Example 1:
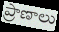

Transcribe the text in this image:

ప్రాణాలు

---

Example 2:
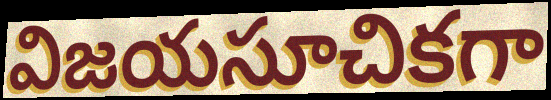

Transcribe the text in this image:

విజయసూచికగా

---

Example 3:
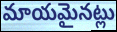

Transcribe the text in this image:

మాయమైనట్లు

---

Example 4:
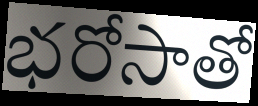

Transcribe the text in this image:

భరోసాతో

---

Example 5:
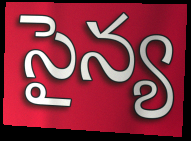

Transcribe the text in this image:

సైన్య